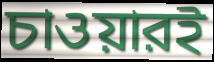
চাওয়ারই